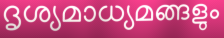
ദൃശ്യമാധ്യമങ്ങളും